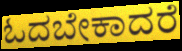
ಓದಬೇಕಾದರೆ